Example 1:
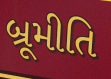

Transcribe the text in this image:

બ્રૂમીતિ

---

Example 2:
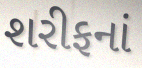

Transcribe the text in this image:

શરીફનાં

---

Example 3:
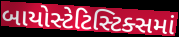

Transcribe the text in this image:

બાયોસ્ટેટિસ્ટિક્સમાં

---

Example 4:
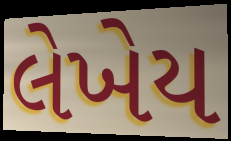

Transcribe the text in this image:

લેખેય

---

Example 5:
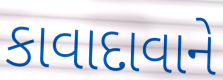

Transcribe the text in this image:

કાવાદાવાને